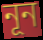
নূন